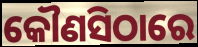
କୌଣସିଠାରେ